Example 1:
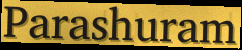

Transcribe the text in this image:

Parashuram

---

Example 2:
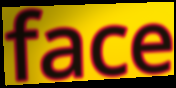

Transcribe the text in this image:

face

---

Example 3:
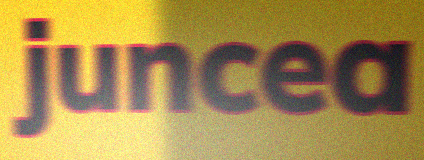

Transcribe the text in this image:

juncea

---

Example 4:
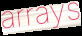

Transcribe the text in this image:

arrays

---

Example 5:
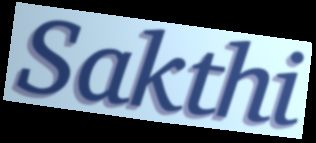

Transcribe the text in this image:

Sakthi